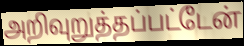
அறிவுறுத்தப்பட்டேன்